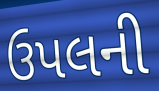
ઉપલની